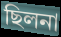
ছিলনা